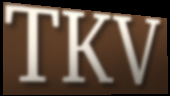
TKV